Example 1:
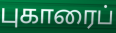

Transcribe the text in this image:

புகாரைப்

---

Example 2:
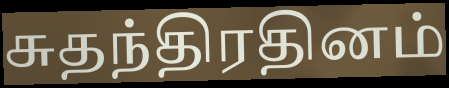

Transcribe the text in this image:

சுதந்திரதினம்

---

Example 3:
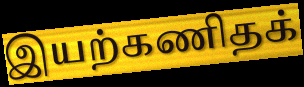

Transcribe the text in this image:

இயற்கணிதக்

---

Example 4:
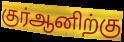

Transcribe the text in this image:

குர்ஆனிற்கு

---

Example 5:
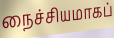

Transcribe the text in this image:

நைச்சியமாகப்